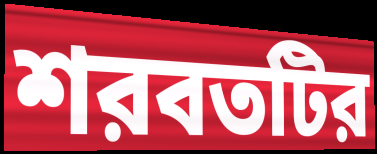
শরবতটির